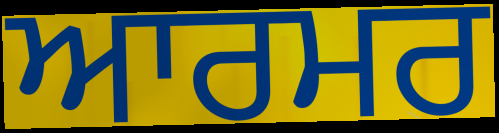
ਆਰਮਰ